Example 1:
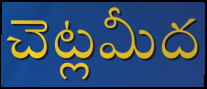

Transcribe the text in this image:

చెట్లమీద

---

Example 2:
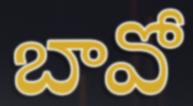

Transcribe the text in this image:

బావో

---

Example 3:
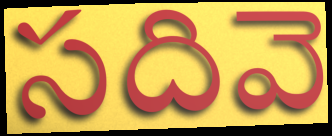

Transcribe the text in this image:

సదివె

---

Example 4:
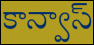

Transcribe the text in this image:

కాన్వాస్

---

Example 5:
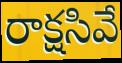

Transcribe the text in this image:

రాక్షసివే